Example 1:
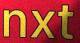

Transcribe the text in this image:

nxt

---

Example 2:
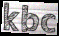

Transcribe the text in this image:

kbc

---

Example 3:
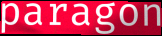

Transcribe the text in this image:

paragon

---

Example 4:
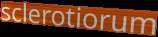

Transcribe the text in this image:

sclerotiorum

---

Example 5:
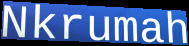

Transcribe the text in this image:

Nkrumah